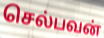
செல்பவன்